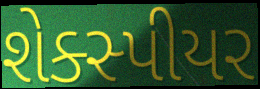
શેક્સ્પીયર